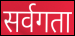
सर्वगता